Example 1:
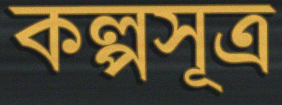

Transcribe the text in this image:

কল্পসূত্র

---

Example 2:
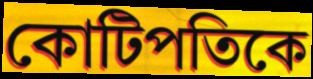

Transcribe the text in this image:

কোটিপতিকে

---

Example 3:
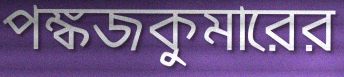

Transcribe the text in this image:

পঙ্কজকুমারের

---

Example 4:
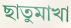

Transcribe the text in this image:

ছাতুমাখা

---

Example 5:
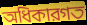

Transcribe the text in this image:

অধিকারগত